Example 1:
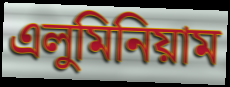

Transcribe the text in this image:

এলুমিনিয়াম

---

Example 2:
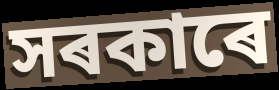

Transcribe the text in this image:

সৰকাৰে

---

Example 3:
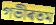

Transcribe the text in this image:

গভীৰতম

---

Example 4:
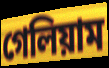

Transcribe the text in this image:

গেলিয়াম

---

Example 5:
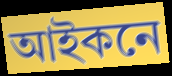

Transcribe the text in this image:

আইকনে